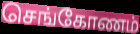
செங்கோணம்